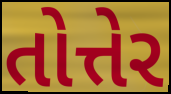
તોત્તેર